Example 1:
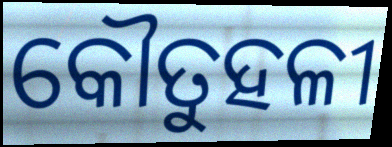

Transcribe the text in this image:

କୌତୁହଳୀ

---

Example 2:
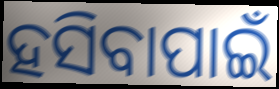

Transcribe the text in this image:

ହସିବାପାଇଁ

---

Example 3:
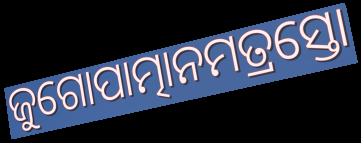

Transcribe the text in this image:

ଜୁଗୋପାତ୍ମାନମତ୍ରସ୍ତୋ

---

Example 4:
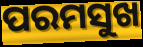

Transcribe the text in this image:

ପରମସୁଖ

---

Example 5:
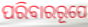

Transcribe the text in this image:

ପରିବାରରୂପେ